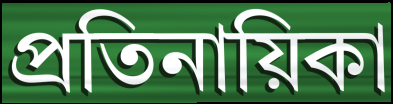
প্রতিনায়িকা